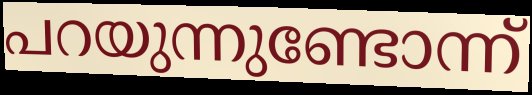
പറയുന്നുണ്ടോന്ന്